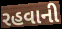
રહવાની